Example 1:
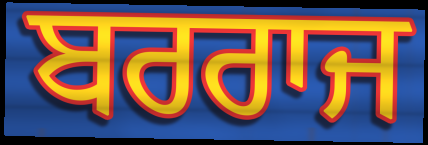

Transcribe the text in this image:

ਬਰਰਾਜ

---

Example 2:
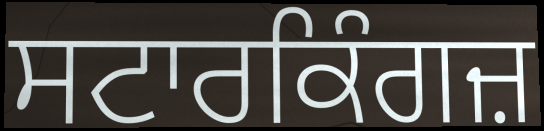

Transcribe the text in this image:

ਸਟਾਰਕਿੰਗਜ਼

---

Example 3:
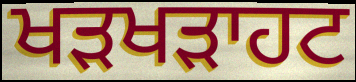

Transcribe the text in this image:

ਖੜਖੜਾਹਟ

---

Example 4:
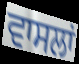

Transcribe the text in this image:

ਵਾਸਲਾਂ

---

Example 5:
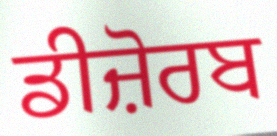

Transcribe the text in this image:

ਡੀਜ਼ੋਰਬ